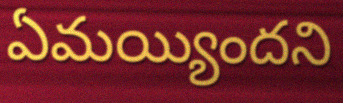
ఏమయ్యిందని